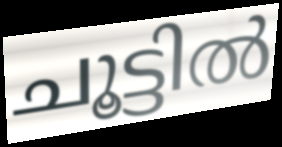
ചൂട്ടിൽ